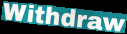
Withdraw